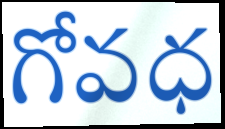
గోవధ